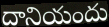
దానియందు